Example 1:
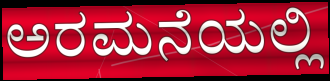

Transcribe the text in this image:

ಅರಮನೆಯಲ್ಲಿ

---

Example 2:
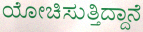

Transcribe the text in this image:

ಯೋಚಿಸುತ್ತಿದ್ದಾನೆ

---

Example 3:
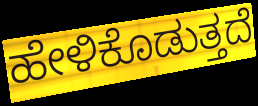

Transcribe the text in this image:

ಹೇಳಿಕೊಡುತ್ತದೆ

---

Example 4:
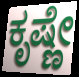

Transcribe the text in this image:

ಕೃಷ್ಣೇ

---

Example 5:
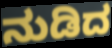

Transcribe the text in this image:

ನುಡಿದ